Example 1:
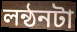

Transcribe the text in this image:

লন্ঠনটা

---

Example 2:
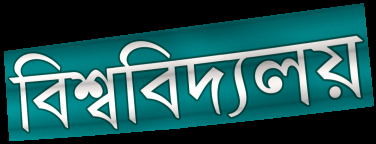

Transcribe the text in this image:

বিশ্ববিদ্যলয়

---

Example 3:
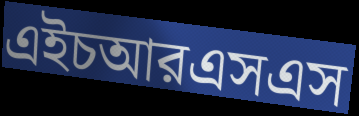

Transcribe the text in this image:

এইচআরএসএস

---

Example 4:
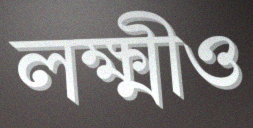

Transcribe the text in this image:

লক্ষ্মীও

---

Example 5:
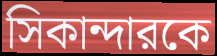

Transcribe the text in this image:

সিকান্দারকে